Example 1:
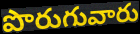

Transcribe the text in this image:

పొరుగువారు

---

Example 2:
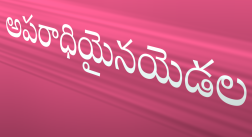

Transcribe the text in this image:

అపరాధియైనయెడల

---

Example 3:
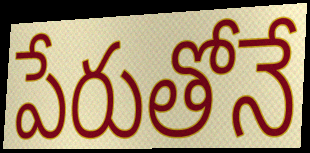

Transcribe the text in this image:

పేరుతోనే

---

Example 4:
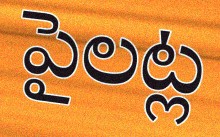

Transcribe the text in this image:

పైలట్ల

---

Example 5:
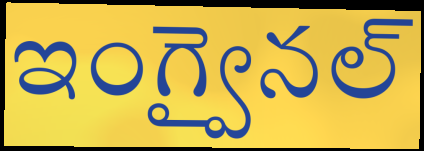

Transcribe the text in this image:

ఇంగ్వైనల్